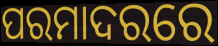
ପରମାଦରରେ